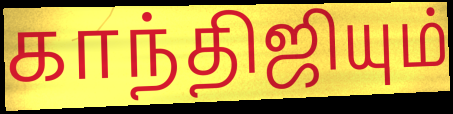
காந்திஜியும்